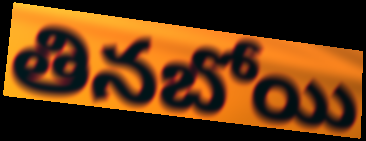
తినబోయి